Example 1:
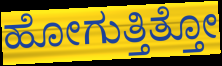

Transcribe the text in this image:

ಹೋಗುತ್ತಿತ್ತೋ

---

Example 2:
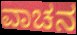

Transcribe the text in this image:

ವಾಚನ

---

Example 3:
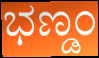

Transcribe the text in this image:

ಭಣ್ಡಂ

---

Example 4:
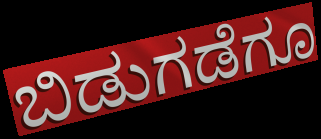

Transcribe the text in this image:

ಬಿಡುಗಡೆಗೂ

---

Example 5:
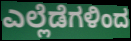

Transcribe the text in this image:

ಎಲ್ಲೆಡೆಗಳಿಂದ